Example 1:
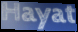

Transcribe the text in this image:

Hayat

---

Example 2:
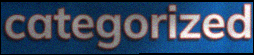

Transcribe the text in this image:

categorized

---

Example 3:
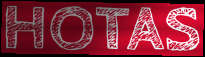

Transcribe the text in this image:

HOTAS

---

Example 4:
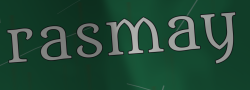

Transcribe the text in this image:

rasmay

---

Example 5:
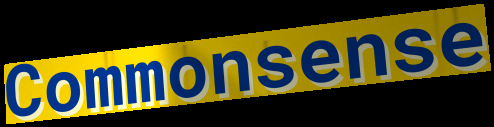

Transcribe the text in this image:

Commonsense